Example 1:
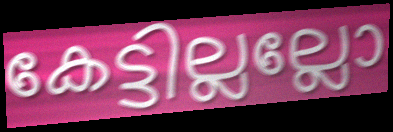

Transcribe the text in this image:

കേട്ടില്ലല്ലോ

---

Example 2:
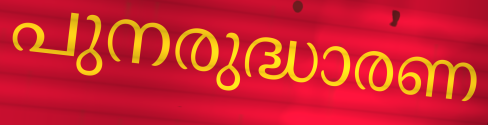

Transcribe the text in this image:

പുനരുദ്ധാരണ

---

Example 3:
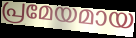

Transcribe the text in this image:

പ്രമേയമായ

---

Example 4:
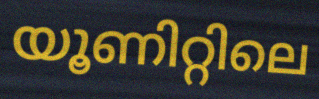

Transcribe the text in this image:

യൂണിറ്റിലെ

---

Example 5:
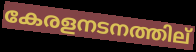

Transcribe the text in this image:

കേരളനടനത്തില്